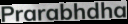
Prarabhdha